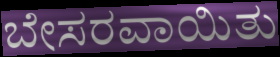
ಬೇಸರವಾಯಿತು